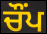
ਚੌਂਪ